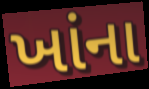
ખાંના